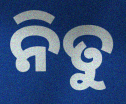
ନିତୁ